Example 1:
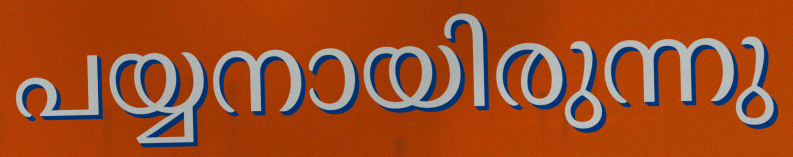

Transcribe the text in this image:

പയ്യനായിരുന്നു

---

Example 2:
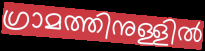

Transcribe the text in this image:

ഗ്രാമത്തിനുള്ളിൽ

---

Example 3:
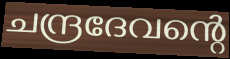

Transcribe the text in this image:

ചന്ദ്രദേവന്റെ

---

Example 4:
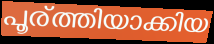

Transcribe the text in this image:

പൂര്ത്തിയാക്കിയ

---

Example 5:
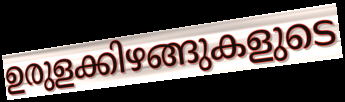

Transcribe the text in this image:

ഉരുളക്കിഴങ്ങുകളുടെ